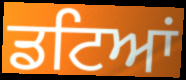
ਡਟਿਆਂ